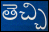
తెచ్చి